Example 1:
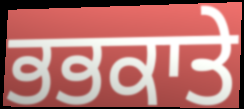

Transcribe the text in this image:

ਭਭਕਾਤੇ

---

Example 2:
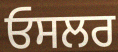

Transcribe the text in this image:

ਓਸਲਰ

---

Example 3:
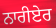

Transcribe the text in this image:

ਨਾਰੀਏਰ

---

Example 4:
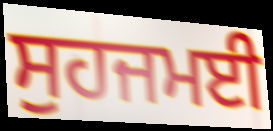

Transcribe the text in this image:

ਸੁਹਜਮਈ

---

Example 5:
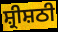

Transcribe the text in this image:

ਸ਼੍ਰੀਸ਼ਠੀ